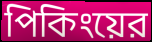
পিকিংয়ের